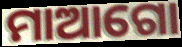
ମାଆଗୋ